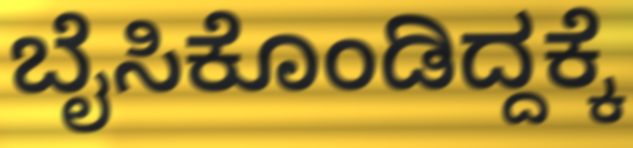
ಬೈಸಿಕೊಂಡಿದ್ದಕ್ಕೆ